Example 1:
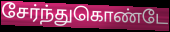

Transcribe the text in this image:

சேர்ந்துகொண்டே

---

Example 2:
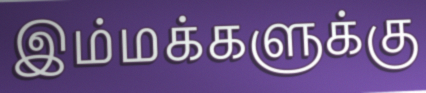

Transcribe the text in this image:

இம்மக்களுக்கு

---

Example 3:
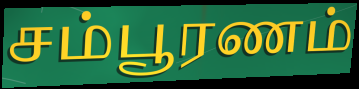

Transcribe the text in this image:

சம்பூரணம்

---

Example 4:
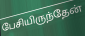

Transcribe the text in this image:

பேசியிருந்தேன்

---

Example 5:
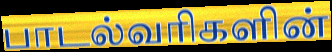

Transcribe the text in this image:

பாடல்வரிகளின்